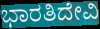
ಭಾರತಿದೇವಿ